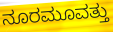
ನೂರಮೂವತ್ತು